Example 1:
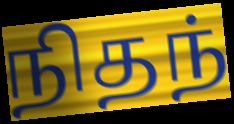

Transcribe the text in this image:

நிதந்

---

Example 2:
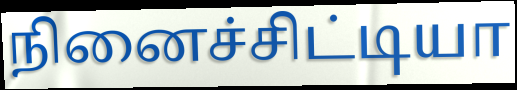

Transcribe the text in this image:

நினைச்சிட்டியா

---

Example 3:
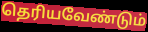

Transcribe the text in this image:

தெரியவேண்டும்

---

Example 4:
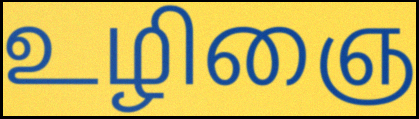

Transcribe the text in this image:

உழிஞை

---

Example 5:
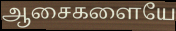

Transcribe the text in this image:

ஆசைகளையே